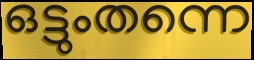
ഒട്ടുംതന്നെ